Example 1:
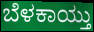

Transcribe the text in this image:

ಬೆಳಕಾಯ್ತು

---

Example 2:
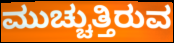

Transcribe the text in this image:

ಮುಚ್ಚುತ್ತಿರುವ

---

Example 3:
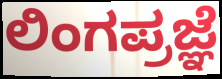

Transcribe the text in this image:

ಲಿಂಗಪ್ರಜ್ಞೆ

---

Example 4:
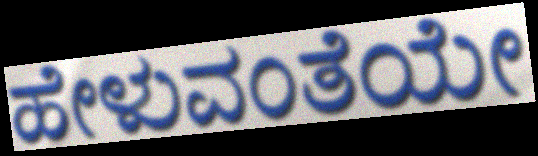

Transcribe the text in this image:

ಹೇಳುವಂತೆಯೇ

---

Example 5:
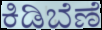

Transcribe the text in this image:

ಕಿಡಿಬೆಣೆ